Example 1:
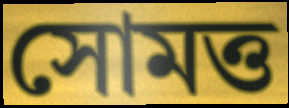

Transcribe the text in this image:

সোমত্ত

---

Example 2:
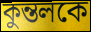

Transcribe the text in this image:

কুন্তলকে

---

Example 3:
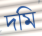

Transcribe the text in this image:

দমি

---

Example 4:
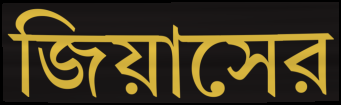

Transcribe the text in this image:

জিয়াসের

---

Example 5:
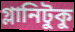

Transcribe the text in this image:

গ্লানিটুকু